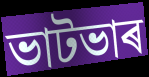
ভাটভাৰ